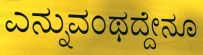
ಎನ್ನುವಂಥದ್ದೇನೂ